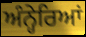
ਅੰਨ੍ਹੇਰਿਆਂ